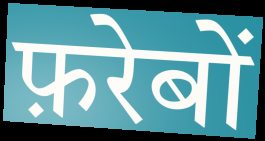
फ़रेबों